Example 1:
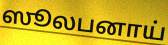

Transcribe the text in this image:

ஸூலபனாய்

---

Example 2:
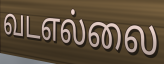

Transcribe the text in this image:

வடஎல்லை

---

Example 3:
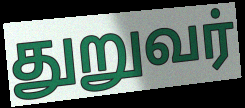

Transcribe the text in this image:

துறுவர்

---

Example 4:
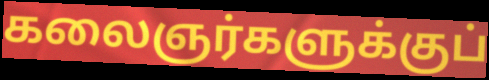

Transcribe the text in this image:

கலைஞர்களுக்குப்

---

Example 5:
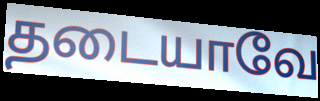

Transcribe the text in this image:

தடையாவே